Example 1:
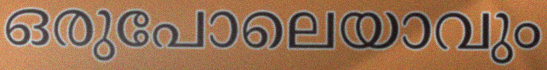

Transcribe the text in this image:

ഒരുപോലെയാവും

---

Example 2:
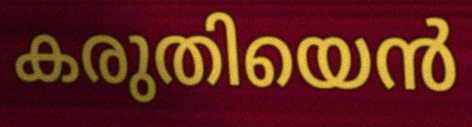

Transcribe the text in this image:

കരുതിയെൻ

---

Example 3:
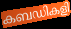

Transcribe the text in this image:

കബഡികളി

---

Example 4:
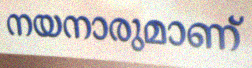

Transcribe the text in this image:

നയനാരുമാണ്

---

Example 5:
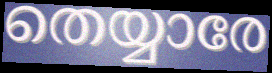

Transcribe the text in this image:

തെയ്യാരേ